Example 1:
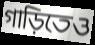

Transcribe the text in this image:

গাড়িতেও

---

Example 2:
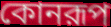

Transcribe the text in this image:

কোনরূপ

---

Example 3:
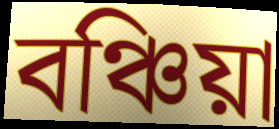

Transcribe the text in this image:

বঞ্চিয়া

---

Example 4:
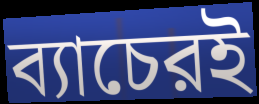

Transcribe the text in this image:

ব্যাচেরই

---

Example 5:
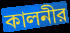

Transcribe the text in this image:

কালনীর